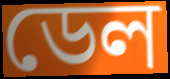
ডেল